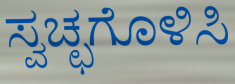
ಸ್ವಚ್ಛಗೊಳಿಸಿ